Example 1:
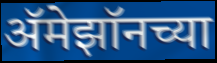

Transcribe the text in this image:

ॲमेझॉनच्या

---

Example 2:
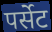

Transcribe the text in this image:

पर्सेट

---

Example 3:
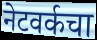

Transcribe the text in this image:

नेटवर्कचा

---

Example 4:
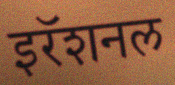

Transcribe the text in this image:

इरॅशनल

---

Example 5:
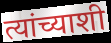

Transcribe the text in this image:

त्यांच्याशी